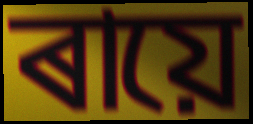
ৰায়ে